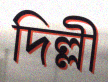
দিল্লী